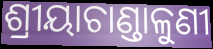
ଶ୍ରୀୟାଚାଣ୍ଡାଳୁଣୀ